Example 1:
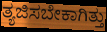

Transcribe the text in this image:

ತ್ಯಜಿಸಬೇಕಾಗಿತ್ತು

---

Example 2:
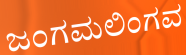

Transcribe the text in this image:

ಜಂಗಮಲಿಂಗವ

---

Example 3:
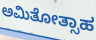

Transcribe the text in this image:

ಅಮಿತೋತ್ಸಾಹ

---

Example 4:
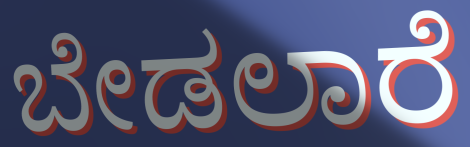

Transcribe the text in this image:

ಬೇಡಲಾರೆ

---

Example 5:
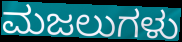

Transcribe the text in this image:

ಮಜಲುಗಳು